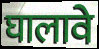
घालावे